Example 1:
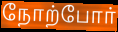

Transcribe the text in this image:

நோற்போர்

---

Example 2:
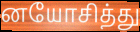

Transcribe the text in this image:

னயோசித்து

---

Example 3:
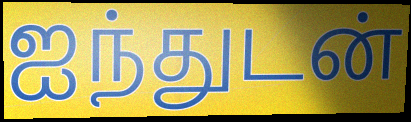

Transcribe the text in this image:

ஐந்துடன்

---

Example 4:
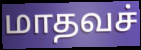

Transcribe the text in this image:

மாதவச்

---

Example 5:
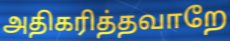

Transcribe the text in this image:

அதிகரித்தவாறே